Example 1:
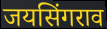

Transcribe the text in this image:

जयसिंगराव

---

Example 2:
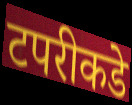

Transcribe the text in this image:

टपरीकडे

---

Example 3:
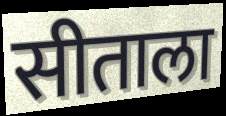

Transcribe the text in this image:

सीताला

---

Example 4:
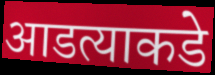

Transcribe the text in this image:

आडत्याकडे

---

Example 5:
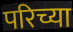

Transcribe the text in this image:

परिच्या